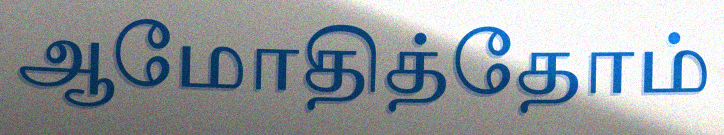
ஆமோதித்தோம்